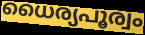
ധൈര്യപൂര്വം